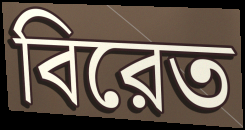
বিরেত